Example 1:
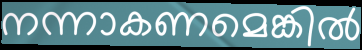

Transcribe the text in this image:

നന്നാകണമെങ്കിൽ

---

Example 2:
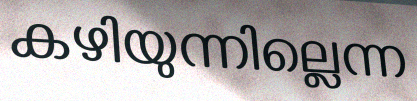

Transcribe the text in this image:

കഴിയുന്നില്ലെന്ന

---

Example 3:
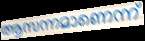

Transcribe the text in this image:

ആസന്നമാണെന്ന്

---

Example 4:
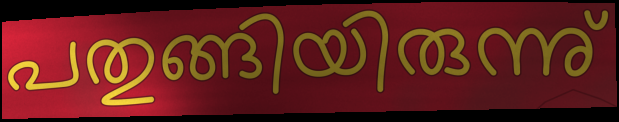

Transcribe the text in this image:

പതുങ്ങിയിരുന്നു്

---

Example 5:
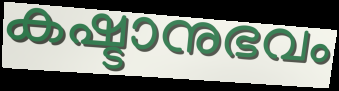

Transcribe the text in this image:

കഷ്ടാനുഭവം